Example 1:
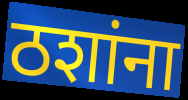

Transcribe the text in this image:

ठशांना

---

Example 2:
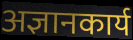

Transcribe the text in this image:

अज्ञानकार्य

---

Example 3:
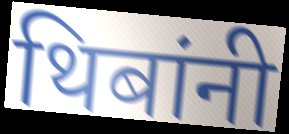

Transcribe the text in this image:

थिबांनी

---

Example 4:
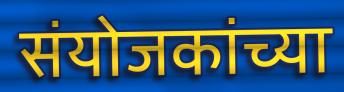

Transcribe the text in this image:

संयोजकांच्या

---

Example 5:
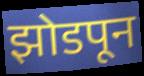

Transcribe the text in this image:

झोडपून